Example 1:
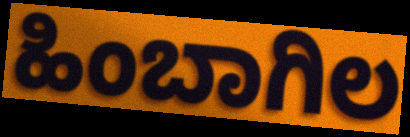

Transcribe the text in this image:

ಹಿಂಬಾಗಿಲ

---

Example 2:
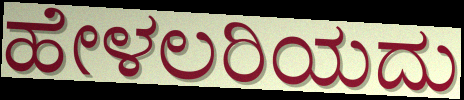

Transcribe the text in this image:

ಹೇಳಲರಿಯದು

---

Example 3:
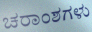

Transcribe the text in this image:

ಚರಾಂಶಗಳು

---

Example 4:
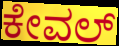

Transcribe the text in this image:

ಕೇವಲ್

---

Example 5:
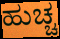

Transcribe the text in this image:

ಹುಚ್ಚ